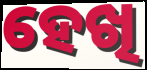
ହେଖି